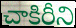
చాకిరీని